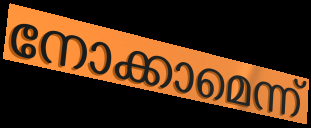
നോക്കാമെന്ന്